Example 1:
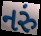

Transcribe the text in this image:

નરું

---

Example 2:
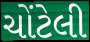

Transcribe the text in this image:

ચોંટેલી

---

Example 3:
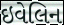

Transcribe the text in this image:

ઇવેલિન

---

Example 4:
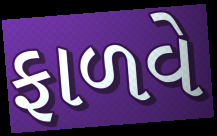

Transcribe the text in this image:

ફાળવે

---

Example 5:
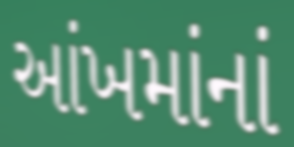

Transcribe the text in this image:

આંખમાંનાં